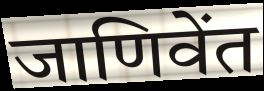
जाणिवेंत